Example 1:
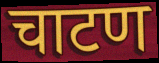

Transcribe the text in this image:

चाटण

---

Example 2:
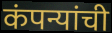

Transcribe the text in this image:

कंपन्यांची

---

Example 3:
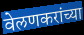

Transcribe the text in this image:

वेलणकरांच्या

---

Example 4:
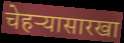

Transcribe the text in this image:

चेहऱ्यासारखा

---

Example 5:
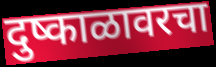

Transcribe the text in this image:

दुष्काळावरचा